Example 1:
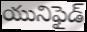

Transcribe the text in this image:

యునిఫైడ్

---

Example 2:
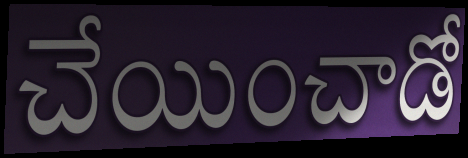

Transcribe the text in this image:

చేయించాడో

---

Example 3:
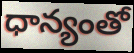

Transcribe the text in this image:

ధాన్యంతో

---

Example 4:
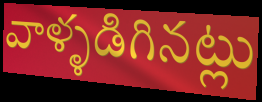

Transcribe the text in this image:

వాళ్ళడిగినట్లు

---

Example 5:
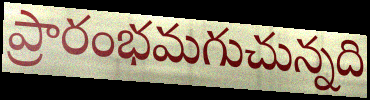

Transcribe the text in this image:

ప్రారంభమగుచున్నది